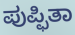
ಪುಪ್ಫಿತಾ